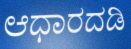
ಆಧಾರದಡಿ